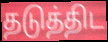
தடுத்திட